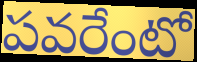
పవరేంటో